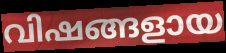
വിഷങ്ങളായ